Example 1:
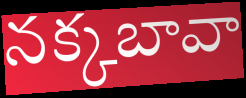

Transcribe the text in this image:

నక్కబావా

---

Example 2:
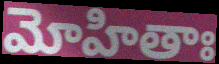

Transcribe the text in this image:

మోహితాః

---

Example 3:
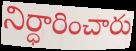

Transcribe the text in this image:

నిర్ధారించారు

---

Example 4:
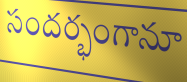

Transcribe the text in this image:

సందర్భంగానూ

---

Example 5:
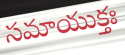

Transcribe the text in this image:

సమాయుక్తః